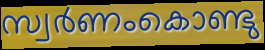
സ്വർണംകൊണ്ടു